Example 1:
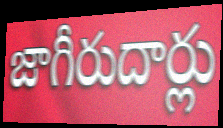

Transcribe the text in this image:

జాగీరుదార్లు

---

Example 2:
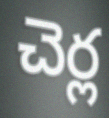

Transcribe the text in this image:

చెర్ల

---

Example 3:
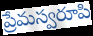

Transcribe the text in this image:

ప్రేమస్వరూపి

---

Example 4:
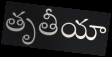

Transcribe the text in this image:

తృతీయా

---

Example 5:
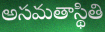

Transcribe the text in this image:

అసమతాస్థితి